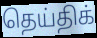
தெய்திக்